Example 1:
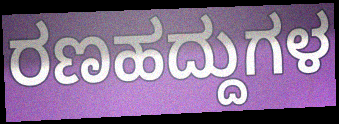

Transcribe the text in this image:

ರಣಹದ್ದುಗಳ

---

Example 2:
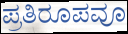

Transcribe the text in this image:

ಪ್ರತಿರೂಪವೂ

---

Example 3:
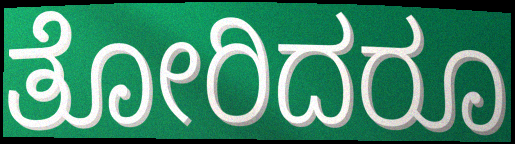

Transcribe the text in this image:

ತೋರಿದರೂ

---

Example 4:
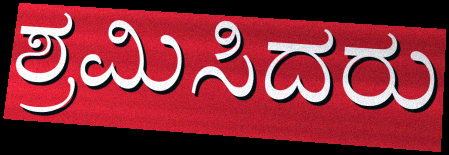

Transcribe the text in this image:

ಶ್ರಮಿಸಿದರು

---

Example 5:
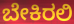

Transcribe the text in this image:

ಬೇಕಿರಲಿ